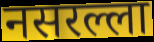
नसरल्ला